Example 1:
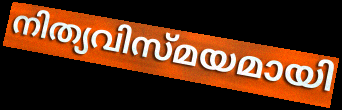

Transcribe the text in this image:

നിത്യവിസ്മയമായി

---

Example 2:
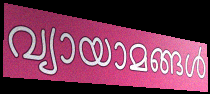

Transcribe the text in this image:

വ്യായാമങ്ങൾ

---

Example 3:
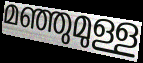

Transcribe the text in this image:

മഞ്ഞുമുള്ള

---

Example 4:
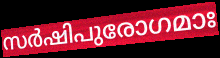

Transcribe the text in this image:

സർഷിപുരോഗമാഃ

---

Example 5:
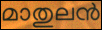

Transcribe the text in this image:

മാതുലൻ